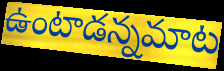
ఉంటాడన్నమాట